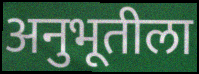
अनुभूतीला